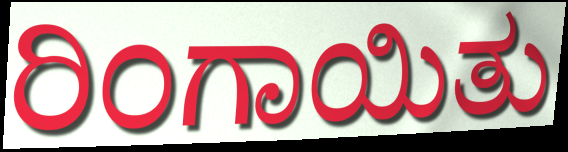
ರಿಂಗಾಯಿತು